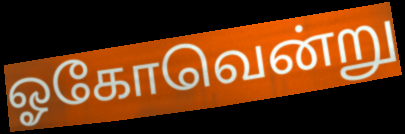
ஓகோவென்று